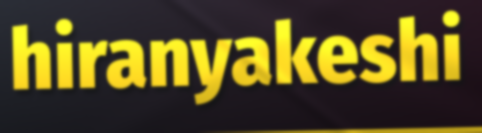
hiranyakeshi